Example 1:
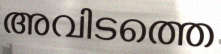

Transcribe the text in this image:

അവിടത്തെ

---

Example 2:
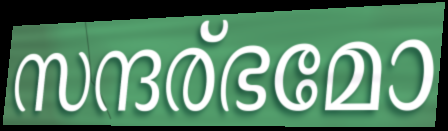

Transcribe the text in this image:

സന്ദര്ഭമോ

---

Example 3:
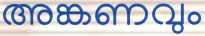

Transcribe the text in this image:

അങ്കണവും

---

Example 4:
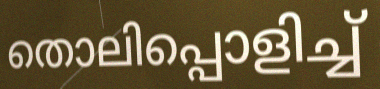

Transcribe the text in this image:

തൊലിപ്പൊളിച്ച്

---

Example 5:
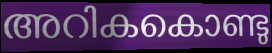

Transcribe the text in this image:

അറികകൊണ്ടു